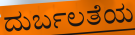
ದುರ್ಬಲತೆಯ